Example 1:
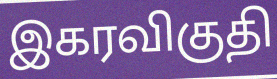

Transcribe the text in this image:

இகரவிகுதி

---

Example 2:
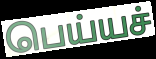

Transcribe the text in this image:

பெய்யச்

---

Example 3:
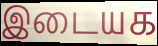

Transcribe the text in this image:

இடையக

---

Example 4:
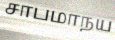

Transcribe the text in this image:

சாபமாநய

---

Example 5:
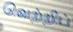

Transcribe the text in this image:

வெற்றிப்